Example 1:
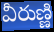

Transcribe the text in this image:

వీరుణ్ణి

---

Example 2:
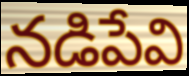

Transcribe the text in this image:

నడిపేవి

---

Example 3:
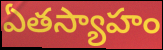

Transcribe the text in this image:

ఏతస్యాహం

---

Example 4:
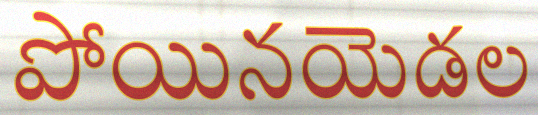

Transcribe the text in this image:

పోయినయెడల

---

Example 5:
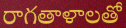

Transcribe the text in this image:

రాగతాళాలతో